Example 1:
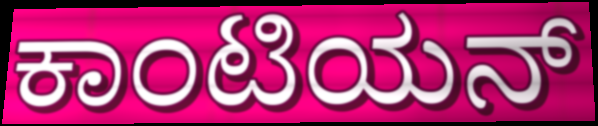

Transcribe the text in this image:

ಕಾಂಟಿಯನ್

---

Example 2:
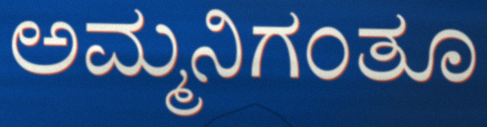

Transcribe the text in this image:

ಅಮ್ಮನಿಗಂತೂ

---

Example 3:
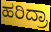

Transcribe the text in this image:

ಹರಿದ್ರಾ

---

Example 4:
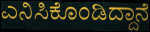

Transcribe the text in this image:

ಎನಿಸಿಕೊಂಡಿದ್ದಾನೆ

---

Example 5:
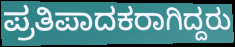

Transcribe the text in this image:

ಪ್ರತಿಪಾದಕರಾಗಿದ್ದರು